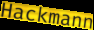
Hackmann